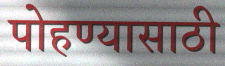
पोहण्यासाठी